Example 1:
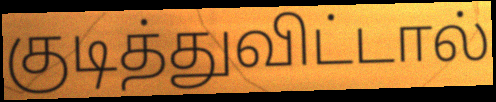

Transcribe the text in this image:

குடித்துவிட்டால்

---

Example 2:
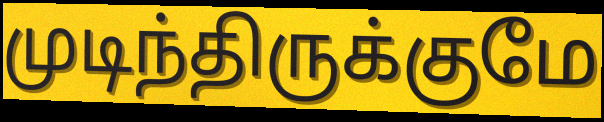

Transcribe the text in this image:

முடிந்திருக்குமே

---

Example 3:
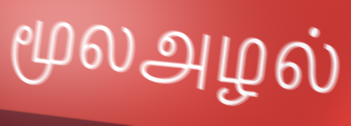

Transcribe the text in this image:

மூலஅழல்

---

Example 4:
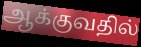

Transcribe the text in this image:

ஆக்குவதில்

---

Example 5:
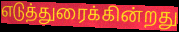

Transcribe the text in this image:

எடுத்துரைக்கின்றது